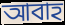
আবাহ